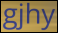
gjhy